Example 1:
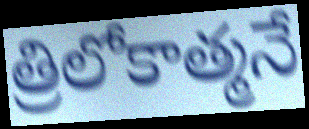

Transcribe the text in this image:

త్రిలోకాత్మనే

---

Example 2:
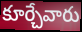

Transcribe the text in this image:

కూర్చేవారు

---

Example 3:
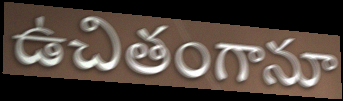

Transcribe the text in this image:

ఉచితంగానూ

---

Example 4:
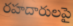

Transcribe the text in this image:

రహదారులపై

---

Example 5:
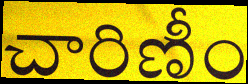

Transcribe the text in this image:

చారిణీం